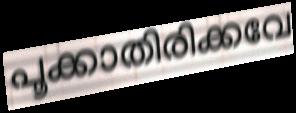
പൂക്കാതിരിക്കവേ